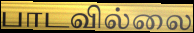
பாடவில்லை